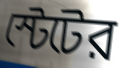
স্টেটের